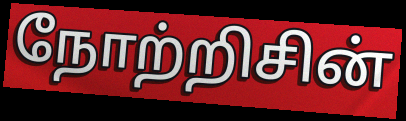
நோற்றிசின்